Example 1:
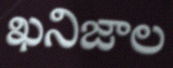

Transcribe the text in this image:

ఖనిజాల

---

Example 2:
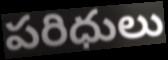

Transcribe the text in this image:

పరిధులు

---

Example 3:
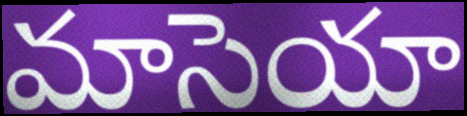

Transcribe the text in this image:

మాసెయా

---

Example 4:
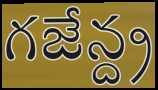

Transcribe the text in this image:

గజేన్ద్ర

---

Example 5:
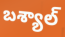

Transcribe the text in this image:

బశ్యాల్